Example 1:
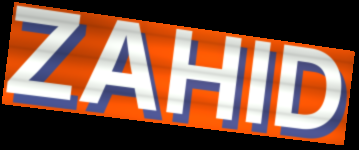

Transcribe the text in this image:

ZAHID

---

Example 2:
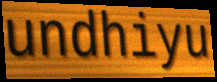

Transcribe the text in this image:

undhiyu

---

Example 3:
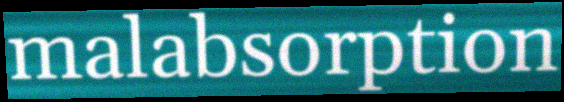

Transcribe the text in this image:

malabsorption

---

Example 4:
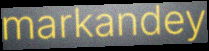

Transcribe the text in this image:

markandey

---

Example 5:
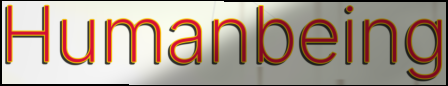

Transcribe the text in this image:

Humanbeing